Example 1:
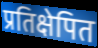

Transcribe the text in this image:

प्रतिक्षेपित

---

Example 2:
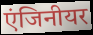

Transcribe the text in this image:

एंजिनीयर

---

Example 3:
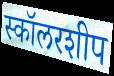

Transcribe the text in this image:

स्कॉलरशीप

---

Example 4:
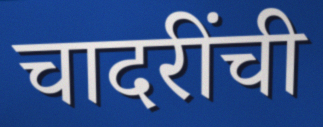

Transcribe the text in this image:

चादरींची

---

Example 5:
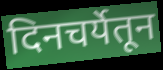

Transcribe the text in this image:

दिनचर्येतून